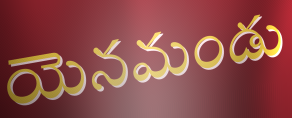
యెనమండు